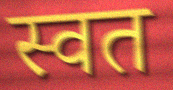
स्वत